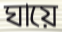
ঘায়ে